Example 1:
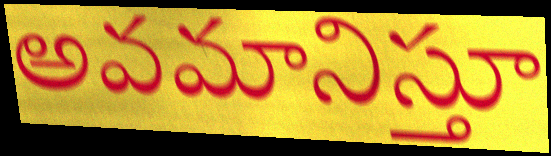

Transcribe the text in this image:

అవమానిస్తూ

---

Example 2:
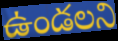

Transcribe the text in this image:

ఉండలని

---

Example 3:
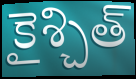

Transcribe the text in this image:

కైశ్చిత్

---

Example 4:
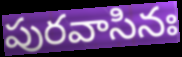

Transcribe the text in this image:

పురవాసినః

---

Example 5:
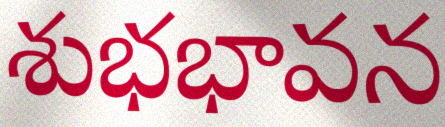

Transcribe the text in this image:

శుభభావన